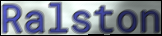
Ralston